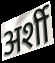
अर्शी